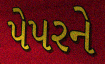
પેપરને